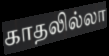
காதலில்லா